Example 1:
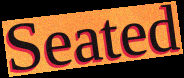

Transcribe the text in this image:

Seated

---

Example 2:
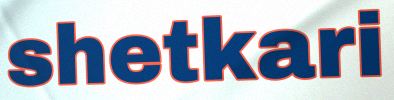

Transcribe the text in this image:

shetkari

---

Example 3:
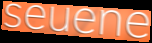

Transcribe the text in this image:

seuene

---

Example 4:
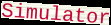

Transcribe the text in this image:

Simulator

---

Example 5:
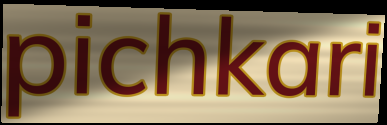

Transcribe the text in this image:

pichkari